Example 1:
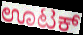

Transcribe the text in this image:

ಊಟಕ್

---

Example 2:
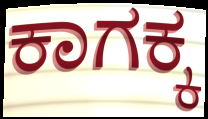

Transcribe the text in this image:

ಕಾಗಕ್ಕ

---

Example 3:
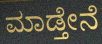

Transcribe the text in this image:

ಮಾಡ್ತೇನೆ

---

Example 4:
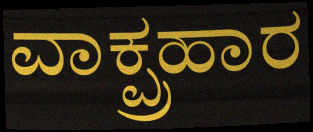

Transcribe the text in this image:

ವಾಕ್ಪ್ರಹಾರ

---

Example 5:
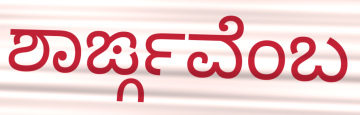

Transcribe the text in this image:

ಶಾರ್ಙ್ಗವೆಂಬ